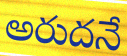
అరుదనే